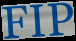
FIP